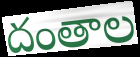
దంతాల